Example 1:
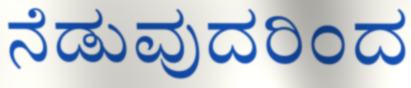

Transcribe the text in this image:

ನೆಡುವುದರಿಂದ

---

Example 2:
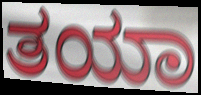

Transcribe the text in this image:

ತಯಾ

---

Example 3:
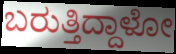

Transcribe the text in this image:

ಬರುತ್ತಿದ್ದಾಳೋ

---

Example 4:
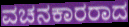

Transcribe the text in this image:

ವಚನಕಾರರಾದ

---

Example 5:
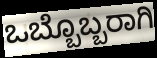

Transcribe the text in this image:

ಒಬ್ಬೊಬ್ಬರಾಗಿ